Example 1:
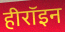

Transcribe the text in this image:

हीरॉइन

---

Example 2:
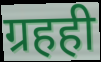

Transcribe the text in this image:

ग्रहही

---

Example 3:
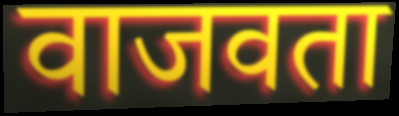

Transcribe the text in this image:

वाजवता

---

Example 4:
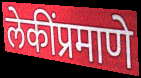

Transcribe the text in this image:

लेकींप्रमाणे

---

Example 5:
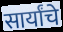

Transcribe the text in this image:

सार्यांचे